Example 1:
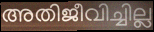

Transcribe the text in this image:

അതിജീവിച്ചില്ല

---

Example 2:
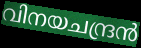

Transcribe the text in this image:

വിനയചന്ദ്രൻ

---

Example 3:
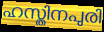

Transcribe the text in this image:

ഹസ്തിനപുരി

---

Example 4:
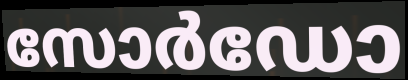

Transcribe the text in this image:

സോർഡോ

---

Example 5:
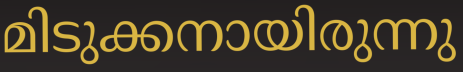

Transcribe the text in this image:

മിടുക്കനായിരുന്നു